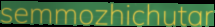
semmozhichutar